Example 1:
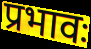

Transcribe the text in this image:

प्रभावः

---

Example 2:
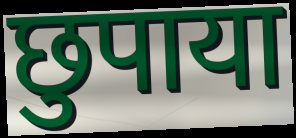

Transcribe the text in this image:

छुपाया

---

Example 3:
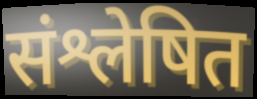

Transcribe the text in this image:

संश्लेषित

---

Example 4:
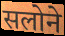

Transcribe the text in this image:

सलोने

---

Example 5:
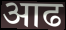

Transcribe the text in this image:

आढ